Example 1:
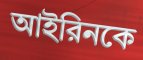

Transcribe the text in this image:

আইরিনকে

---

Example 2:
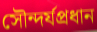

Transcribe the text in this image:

সৌন্দর্যপ্রধান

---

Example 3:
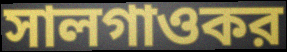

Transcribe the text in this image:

সালগাওকর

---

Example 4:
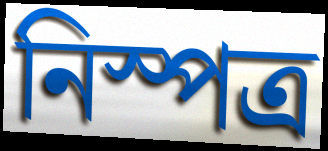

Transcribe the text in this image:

নিস্পত্র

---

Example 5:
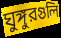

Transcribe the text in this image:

ঘুঙ্গুরগুলি